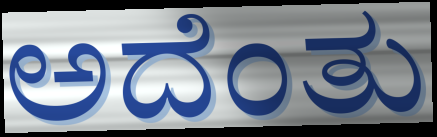
ಅದೆಂತು